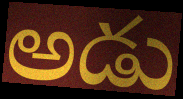
అడు